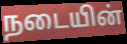
நடையின்